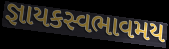
જ્ઞાયકસ્વભાવમય